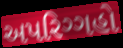
અપરિગ્ગહો